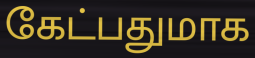
கேட்பதுமாக